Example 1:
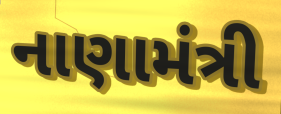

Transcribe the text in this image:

નાણામંત્રી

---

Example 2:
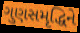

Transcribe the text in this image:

ગુણસમૃદ્ધિને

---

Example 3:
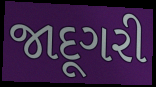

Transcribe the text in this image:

જાદૂગરી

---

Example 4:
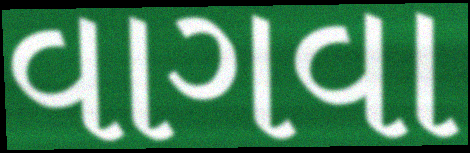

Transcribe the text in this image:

વાગવા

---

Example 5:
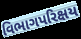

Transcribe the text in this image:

વિભાગપરિક્ષય